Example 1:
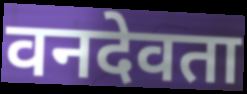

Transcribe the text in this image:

वनदेवता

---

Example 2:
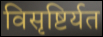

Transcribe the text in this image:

विसृष्टिर्यत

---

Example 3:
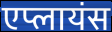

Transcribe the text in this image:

एप्लायंस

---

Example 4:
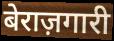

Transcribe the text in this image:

बेराज़गारी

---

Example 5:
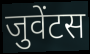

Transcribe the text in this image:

जुवेंटस